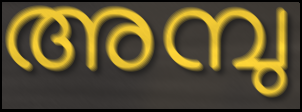
അമ്പു